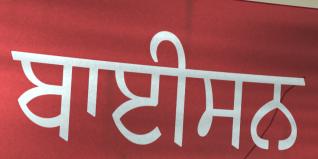
ਬਾਈਸਨ